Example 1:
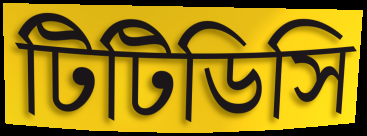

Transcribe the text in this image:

টিটিডিসি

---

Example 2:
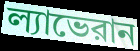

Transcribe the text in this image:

ল্যাভেরান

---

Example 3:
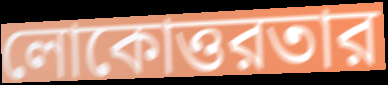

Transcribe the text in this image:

লোকোত্তরতার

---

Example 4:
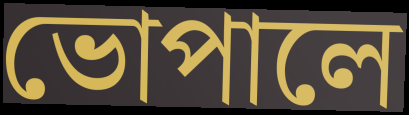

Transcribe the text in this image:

ভোপালে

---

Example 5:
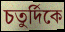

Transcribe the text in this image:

চতুর্দিকে